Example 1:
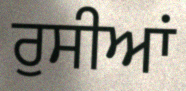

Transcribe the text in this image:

ਰੁਸੀਆਂ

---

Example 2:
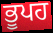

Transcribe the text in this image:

ਭੂਪਹ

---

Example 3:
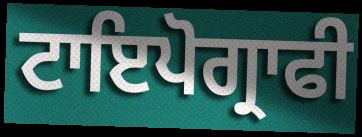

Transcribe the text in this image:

ਟਾਇਪੋਗ੍ਰਾਫੀ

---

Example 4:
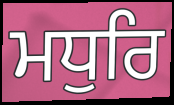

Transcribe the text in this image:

ਮਧੁਰਿ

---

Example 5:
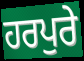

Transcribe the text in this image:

ਹਰਪੁਰੇ